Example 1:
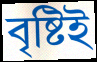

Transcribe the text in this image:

বৃষ্টিই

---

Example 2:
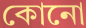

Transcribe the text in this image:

কোনো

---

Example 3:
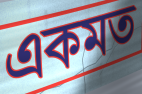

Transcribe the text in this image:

একমত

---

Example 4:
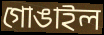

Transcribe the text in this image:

গোঙাইল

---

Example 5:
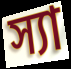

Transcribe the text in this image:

স্যা